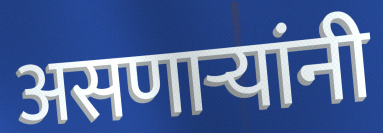
असणाऱ्यांनी